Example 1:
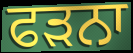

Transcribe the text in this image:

ਫੜਨਾ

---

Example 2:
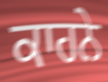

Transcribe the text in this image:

ਕਾਹਨੇ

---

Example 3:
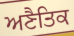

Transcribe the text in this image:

ਅਣੈਤਿਕ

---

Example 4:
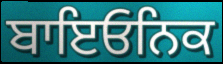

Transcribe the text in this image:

ਬਾਇਓਨਿਕ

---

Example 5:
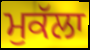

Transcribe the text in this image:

ਮੁਕੱਲਾ